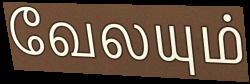
வேலயும்